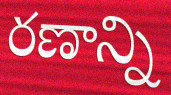
రణాన్ని